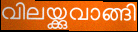
വിലയ്ക്കുവാങ്ങി